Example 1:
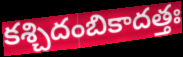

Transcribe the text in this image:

కశ్చిదంబికాదత్తః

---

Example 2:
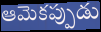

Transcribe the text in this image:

ఆమెకప్పుడు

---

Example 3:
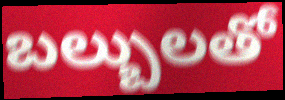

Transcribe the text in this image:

బల్బులతో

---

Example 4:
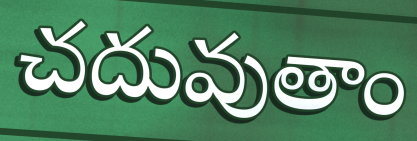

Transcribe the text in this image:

చదువుతాం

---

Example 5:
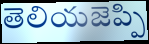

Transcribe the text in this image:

తెలియజెప్పి